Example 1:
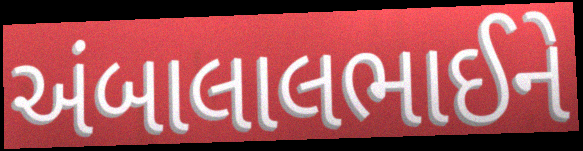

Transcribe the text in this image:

અંબાલાલભાઈને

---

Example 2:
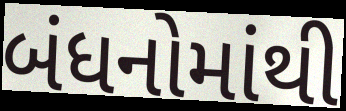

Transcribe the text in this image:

બંધનોમાંથી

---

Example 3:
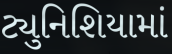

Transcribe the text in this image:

ટ્યુનિશિયામાં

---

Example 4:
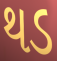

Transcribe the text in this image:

થડ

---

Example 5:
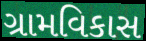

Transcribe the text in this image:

ગ્રામવિકાસ